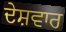
ਦੇਸ਼ਵਾਰ